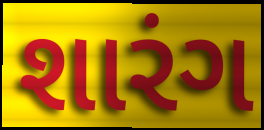
શારંગ